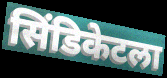
सिंडिकेटला